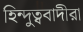
হিন্দুত্ববাদীরা